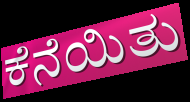
ಕೆನೆಯಿತು